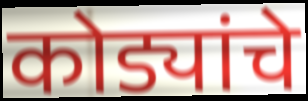
कोड्यांचे